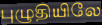
புழுதியிலே